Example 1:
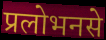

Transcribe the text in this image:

प्रलोभनसे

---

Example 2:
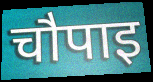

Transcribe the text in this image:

चौपाइ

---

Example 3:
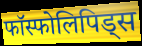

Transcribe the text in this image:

फॉस्फोलिपिड्स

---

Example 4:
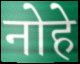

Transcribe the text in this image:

नोहे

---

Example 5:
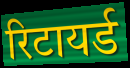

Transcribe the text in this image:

रिटायर्ड